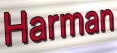
Harman